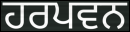
ਹਰਪਵਨ